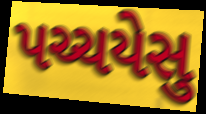
પચ્ચયેસુ